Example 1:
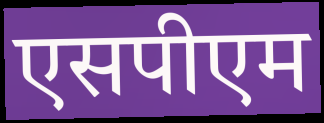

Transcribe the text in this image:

एसपीएम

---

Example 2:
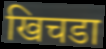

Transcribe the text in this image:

खिचडा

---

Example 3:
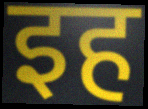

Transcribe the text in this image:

इह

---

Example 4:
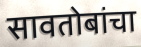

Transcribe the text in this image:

सावतोबांचा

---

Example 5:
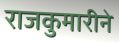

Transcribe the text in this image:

राजकुमारीने